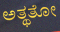
ಅತ್ಥತೋ